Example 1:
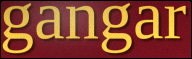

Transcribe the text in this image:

gangar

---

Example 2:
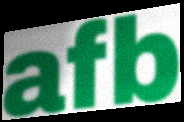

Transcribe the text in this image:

afb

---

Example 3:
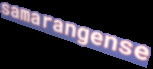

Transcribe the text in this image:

samarangense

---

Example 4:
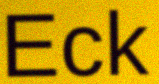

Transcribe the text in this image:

Eck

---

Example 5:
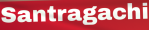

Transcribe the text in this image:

Santragachi